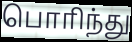
பொரிந்து